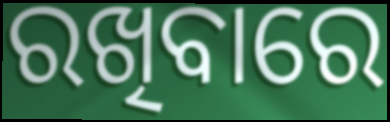
ରଖିବାରେ